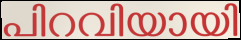
പിറവിയായി